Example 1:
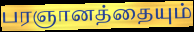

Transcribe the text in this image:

பரஞானத்தையும்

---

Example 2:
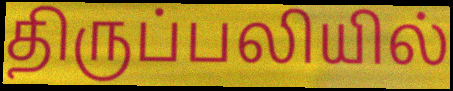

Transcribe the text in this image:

திருப்பலியில்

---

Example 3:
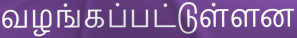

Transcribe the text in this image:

வழங்கப்பட்டுள்ளன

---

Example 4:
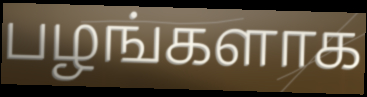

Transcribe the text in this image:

பழங்களாக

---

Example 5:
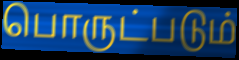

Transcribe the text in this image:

பொருட்படும்